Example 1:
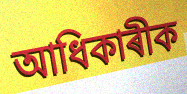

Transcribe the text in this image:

আধিকাৰীক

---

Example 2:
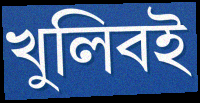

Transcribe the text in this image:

খুলিবই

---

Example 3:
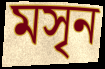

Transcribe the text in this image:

মসৃন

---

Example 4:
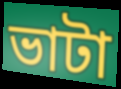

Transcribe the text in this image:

ভাটা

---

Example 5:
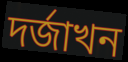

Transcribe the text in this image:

দৰ্জাখন